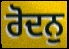
ਰੋਦਨੁ